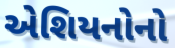
એશિયનોનો